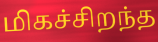
மிகச்சிறந்த